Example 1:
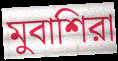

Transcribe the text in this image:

মুবাশিরা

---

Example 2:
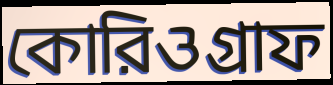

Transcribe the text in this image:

কোরিওগ্রাফ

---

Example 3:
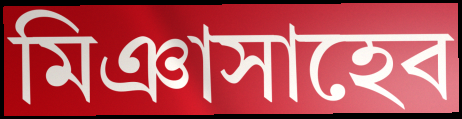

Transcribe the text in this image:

মিঞাসাহেব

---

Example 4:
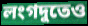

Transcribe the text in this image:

লংগদুতেও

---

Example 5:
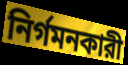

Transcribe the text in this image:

নির্গমনকারী